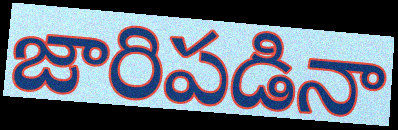
జారిపడినా